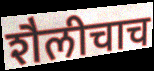
शैलीचाच